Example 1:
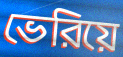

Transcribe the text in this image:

ভেরিয়ে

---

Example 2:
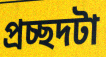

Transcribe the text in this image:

প্রচ্ছদটা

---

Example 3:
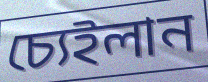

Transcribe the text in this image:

চ্যেইলান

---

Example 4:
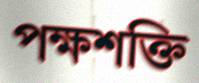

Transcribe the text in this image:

পক্ষশক্তি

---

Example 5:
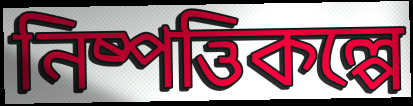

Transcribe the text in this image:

নিষ্পত্তিকল্পে